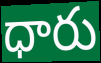
ధారు